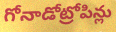
గోనాడోట్రోపిన్లు